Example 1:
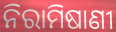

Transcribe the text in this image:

ନିରାମିଷାଣୀ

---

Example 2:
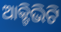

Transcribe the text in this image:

ଆକ୍ଟିଭିଟି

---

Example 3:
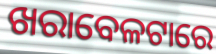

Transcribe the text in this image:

ଖରାବେଳଟାରେ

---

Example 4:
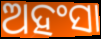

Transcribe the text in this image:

ଅହଂସା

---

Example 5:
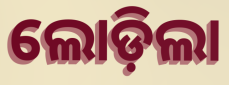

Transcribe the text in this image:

ଲୋଡ଼ିଲା